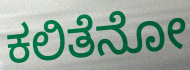
ಕಲಿತೆನೋ